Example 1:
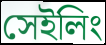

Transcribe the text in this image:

সেইলিং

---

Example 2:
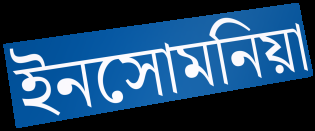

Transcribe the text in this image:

ইনসোমনিয়া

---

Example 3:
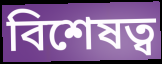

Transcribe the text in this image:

বিশেষত্ব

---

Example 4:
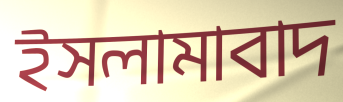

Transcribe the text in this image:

ইসলামাবাদ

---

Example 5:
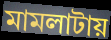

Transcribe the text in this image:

মামলাটায়